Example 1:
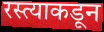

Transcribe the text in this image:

रस्त्याकडून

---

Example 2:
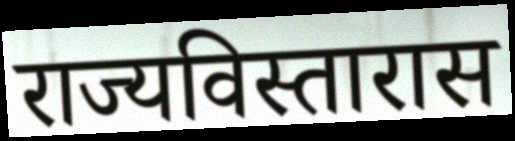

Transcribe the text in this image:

राज्यविस्तारास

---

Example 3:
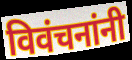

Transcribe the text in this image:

विवंचनांनी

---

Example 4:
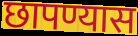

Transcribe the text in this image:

छापण्यास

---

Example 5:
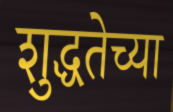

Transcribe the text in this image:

शुद्धतेच्या